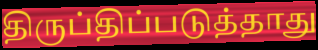
திருப்திப்படுத்தாது